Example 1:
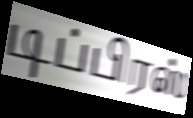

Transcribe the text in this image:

டிப்பிரஸ்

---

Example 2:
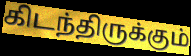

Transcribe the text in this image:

கிடந்திருக்கும்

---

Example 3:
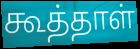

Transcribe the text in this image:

கூத்தாள்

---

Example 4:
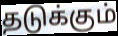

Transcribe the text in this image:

தடுக்கும்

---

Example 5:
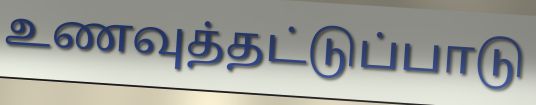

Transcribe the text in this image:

உணவுத்தட்டுப்பாடு